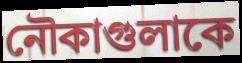
নৌকাগুলাকে